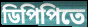
ডিপিপিতে